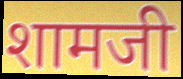
शामजी